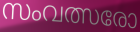
സംവത്സരോ